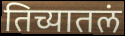
तिच्यातलं